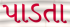
પાડતા